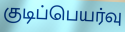
குடிப்பெயர்வு